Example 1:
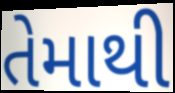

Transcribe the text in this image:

તેમાથી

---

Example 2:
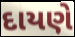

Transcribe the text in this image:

દાયણે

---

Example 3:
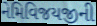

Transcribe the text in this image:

નેમિવિજયજીની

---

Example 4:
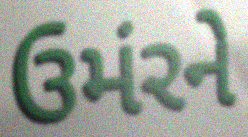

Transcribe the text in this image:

ઉમંરને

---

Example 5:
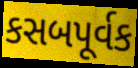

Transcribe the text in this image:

કસબપૂર્વક